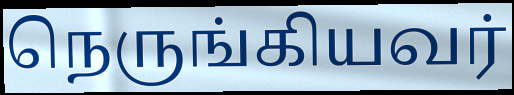
நெருங்கியவர்